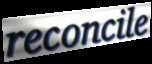
reconcile